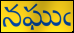
నఘుఁ